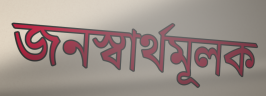
জনস্বার্থমূলক